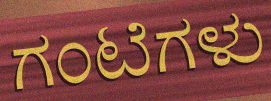
ಗಂಟೆಗಳು